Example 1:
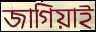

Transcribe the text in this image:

জাগিয়াই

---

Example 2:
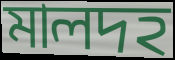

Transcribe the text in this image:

মালদহ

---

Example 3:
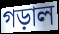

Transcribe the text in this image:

গড়াল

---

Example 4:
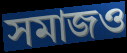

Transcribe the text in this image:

সমাজও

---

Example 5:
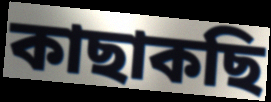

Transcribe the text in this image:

কাছাকছি